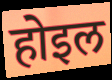
होइल